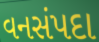
વનસંપદા